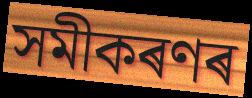
সমীকৰণৰ